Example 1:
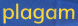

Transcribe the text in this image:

plagam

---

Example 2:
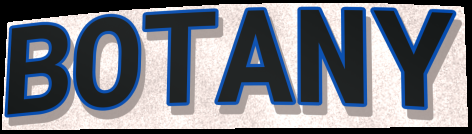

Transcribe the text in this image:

BOTANY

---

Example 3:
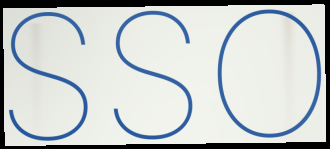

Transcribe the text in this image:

SSO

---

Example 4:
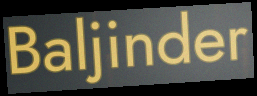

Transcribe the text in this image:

Baljinder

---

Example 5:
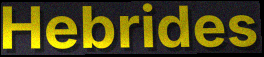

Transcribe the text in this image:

Hebrides